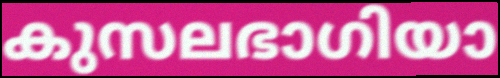
കുസലഭാഗിയാ